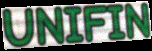
UNIFIN